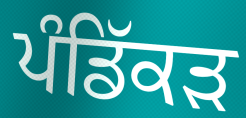
ਪੰਡਿੱਕੜ